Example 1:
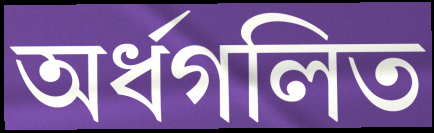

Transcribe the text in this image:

অর্ধগলিত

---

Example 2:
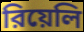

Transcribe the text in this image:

রিয়েলি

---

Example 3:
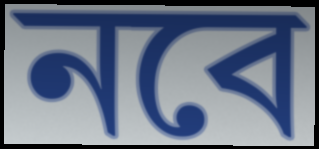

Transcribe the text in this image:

নবে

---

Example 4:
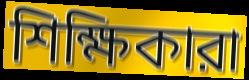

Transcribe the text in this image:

শিক্ষিকারা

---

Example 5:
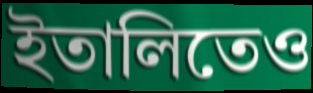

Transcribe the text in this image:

ইতালিতেও